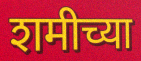
शमीच्या